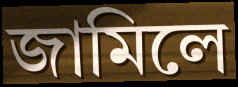
জামিলে